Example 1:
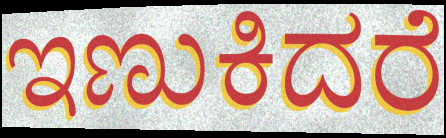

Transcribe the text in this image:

ಇಣುಕಿದರೆ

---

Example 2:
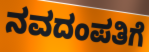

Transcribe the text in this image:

ನವದಂಪತಿಗೆ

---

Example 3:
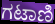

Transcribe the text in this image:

ಗಟಾಣಿ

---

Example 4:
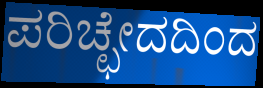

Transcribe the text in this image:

ಪರಿಚ್ಛೇದದಿಂದ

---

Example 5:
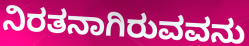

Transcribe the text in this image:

ನಿರತನಾಗಿರುವವನು